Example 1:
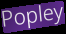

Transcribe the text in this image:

Popley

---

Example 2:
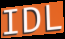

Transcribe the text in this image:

IDL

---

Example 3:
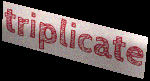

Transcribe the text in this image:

triplicate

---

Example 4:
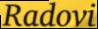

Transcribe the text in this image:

Radovi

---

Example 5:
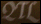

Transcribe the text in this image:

QTL